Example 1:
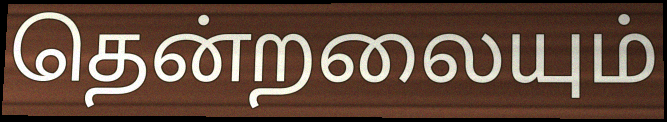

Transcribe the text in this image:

தென்றலையும்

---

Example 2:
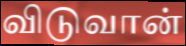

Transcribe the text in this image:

விடுவான்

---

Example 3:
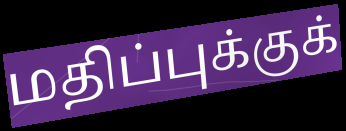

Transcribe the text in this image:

மதிப்புக்குக்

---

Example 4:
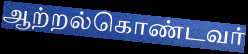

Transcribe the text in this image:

ஆற்றல்கொண்டவர்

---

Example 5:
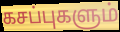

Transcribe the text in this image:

கசப்புகளும்